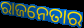
ରାଜନେତାର